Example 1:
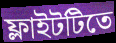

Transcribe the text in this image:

ফ্লাইটটিতে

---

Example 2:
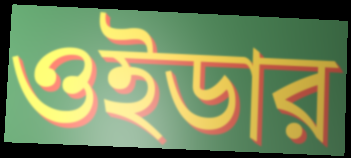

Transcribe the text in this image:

ওইডার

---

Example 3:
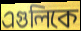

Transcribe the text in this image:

এগুলিকে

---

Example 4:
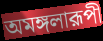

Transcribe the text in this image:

অমঙ্গলারূপী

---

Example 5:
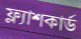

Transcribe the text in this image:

ফ্ল্যাশকার্ড